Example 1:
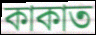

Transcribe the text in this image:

কাকাত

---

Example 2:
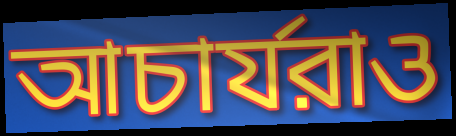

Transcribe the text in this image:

আচার্যরাও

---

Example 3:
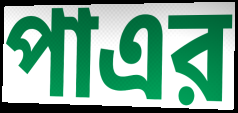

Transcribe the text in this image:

পাএর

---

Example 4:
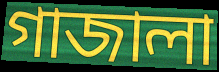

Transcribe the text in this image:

গাজালা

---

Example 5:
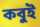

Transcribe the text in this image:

কবুই